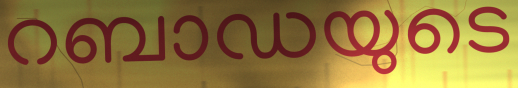
റബാഡയുടെ